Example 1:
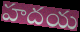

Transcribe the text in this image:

హదయ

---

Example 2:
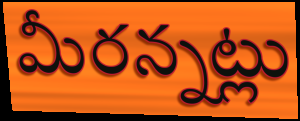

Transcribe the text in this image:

మీరన్నట్లు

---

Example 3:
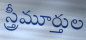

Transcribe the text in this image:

స్త్రీమూర్తుల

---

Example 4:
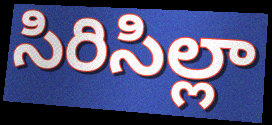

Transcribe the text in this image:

సిరిసిల్లా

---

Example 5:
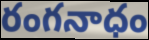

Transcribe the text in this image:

రంగనాధం